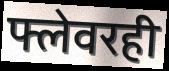
फ्लेवरही